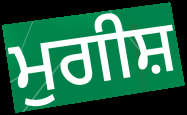
ਮੁਗੀਸ਼